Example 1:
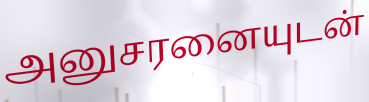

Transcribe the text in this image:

அனுசரனையுடன்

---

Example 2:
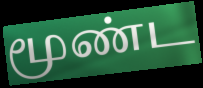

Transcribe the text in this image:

மூண்ட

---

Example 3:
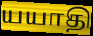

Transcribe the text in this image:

யயாதி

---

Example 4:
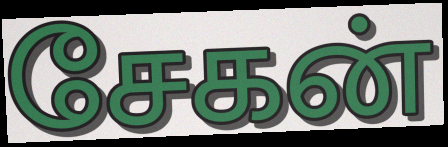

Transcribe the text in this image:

சேகன்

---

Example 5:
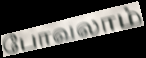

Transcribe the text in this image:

போவலாம்